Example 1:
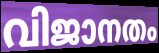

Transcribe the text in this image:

വിജാനതം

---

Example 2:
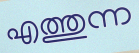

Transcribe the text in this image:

എത്തുന്ന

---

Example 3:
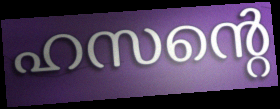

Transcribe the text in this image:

ഹസന്റെ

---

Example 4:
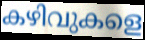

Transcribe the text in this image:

കഴിവുകളെ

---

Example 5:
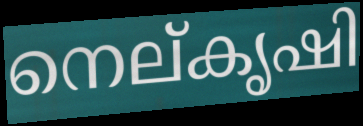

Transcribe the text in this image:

നെല്കൃഷി